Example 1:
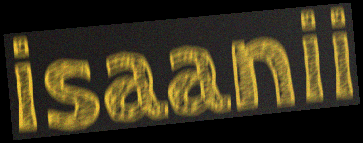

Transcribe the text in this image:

isaanii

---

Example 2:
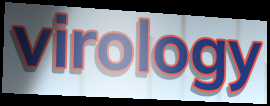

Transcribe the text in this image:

virology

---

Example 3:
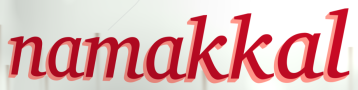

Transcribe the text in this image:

namakkal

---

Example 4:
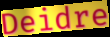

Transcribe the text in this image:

Deidre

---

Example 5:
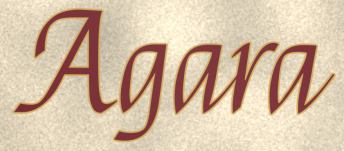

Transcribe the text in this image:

Agara